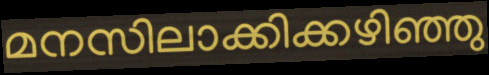
മനസിലാക്കിക്കഴിഞ്ഞു